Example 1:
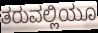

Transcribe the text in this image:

ತರುವಲ್ಲಿಯೂ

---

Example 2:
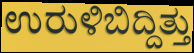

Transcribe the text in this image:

ಉರುಳಿಬಿದ್ದಿತ್ತು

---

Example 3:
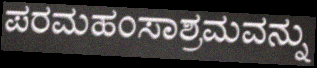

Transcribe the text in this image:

ಪರಮಹಂಸಾಶ್ರಮವನ್ನು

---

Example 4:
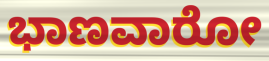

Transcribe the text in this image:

ಭಾಣವಾರೋ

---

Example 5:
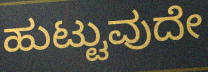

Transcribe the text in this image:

ಹುಟ್ಟುವುದೇ